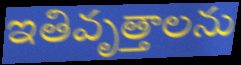
ఇతివృత్తాలను